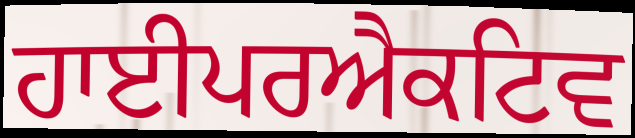
ਹਾਈਪਰਐਕਟਿਵ